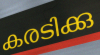
കരടിക്കു